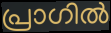
പ്രാഗിൽ